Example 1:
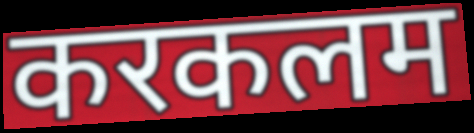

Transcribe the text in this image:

करकलम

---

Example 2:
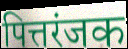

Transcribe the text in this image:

पित्तरंजक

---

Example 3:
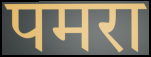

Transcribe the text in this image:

पमरा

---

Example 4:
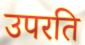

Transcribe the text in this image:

उपरति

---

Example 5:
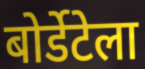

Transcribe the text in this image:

बोर्डेटेला